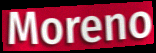
Moreno